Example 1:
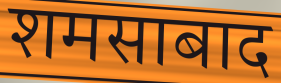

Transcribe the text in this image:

शमसाबाद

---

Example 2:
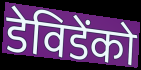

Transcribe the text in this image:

डेविडेंको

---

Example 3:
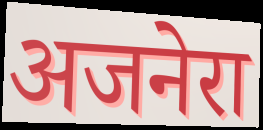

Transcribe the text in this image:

अजनेरा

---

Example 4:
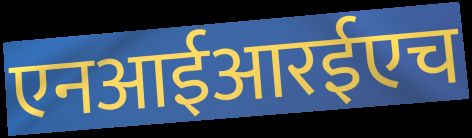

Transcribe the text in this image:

एनआईआरईएच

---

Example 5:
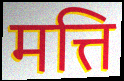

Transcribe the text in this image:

मत्ति